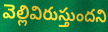
వెల్లివిరుస్తుందని